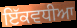
ਇੱਕਵਧੀਆ